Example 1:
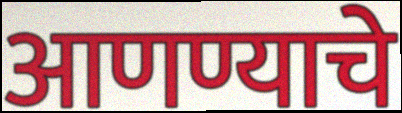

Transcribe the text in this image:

आणण्याचे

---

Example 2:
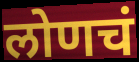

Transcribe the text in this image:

लोणचं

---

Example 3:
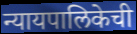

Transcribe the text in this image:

न्यायपालिकेची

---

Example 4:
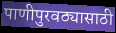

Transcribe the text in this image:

पाणीपुरवठ्यासाठी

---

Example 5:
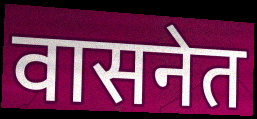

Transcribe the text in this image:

वासनेत